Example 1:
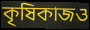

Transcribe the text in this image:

কৃষিকাজও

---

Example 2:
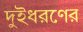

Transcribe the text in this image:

দুইধরণের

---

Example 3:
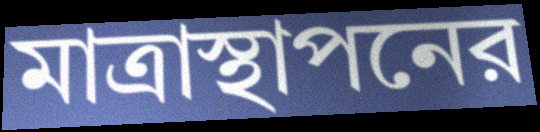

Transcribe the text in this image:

মাত্রাস্থাপনের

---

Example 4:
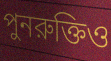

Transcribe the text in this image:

পুনরুক্তিও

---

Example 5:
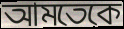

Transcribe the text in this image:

আমতেকে